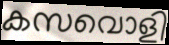
കസവൊളി